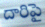
దారిపై